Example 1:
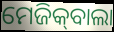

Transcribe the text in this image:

ମେଜିକ୍‍ବାଲା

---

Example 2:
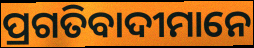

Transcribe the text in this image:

ପ୍ରଗତିବାଦୀମାନେ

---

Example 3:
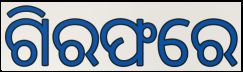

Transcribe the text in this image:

ଗିରଫରେ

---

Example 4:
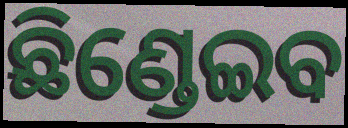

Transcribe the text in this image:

ଛିଣ୍ଡେଇବ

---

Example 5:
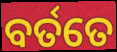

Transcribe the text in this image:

ବର୍ତତେ